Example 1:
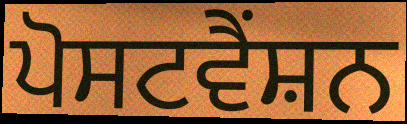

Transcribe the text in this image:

ਪੋਸਟਵੈਂਸ਼ਨ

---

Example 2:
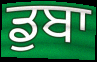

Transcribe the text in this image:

ਡੁਬਾ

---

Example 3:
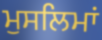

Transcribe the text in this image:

ਮੁਸਲਿਮਾਂ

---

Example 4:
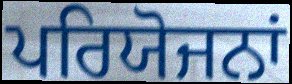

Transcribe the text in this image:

ਪਰਿਯੋਜਨਾਂ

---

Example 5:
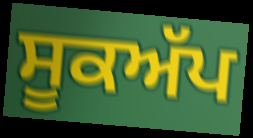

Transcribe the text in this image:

ਸੂਕਅੱਪ